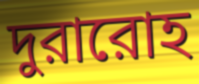
দুরারোহ